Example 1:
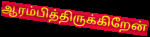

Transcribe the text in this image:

ஆரம்பித்திருக்கிறேன்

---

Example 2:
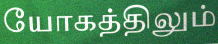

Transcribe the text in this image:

யோகத்திலும்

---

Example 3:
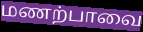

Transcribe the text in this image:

மணற்பாவை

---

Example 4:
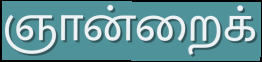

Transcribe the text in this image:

ஞான்றைக்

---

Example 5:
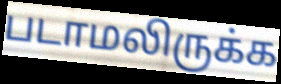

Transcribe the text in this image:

படாமலிருக்க